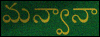
మన్వానా